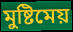
মুষ্টিমেয়